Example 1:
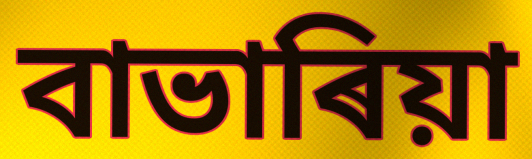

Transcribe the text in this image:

বাভাৰিয়া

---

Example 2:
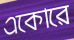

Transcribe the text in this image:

একোৱে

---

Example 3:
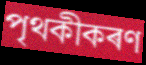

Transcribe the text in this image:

পৃথকীকৰণ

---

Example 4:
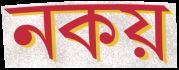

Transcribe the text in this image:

নকয়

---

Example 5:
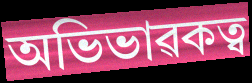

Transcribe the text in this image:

অভিভাৱকত্ব